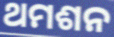
ଥମଶନ